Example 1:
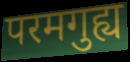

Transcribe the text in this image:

परमगुह्य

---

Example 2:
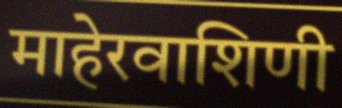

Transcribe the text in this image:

माहेरवाशिणी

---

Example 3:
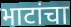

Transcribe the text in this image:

भाटांचा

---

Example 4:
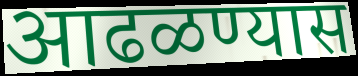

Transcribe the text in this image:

आढळण्यास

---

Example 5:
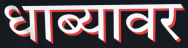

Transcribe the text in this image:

धाब्यावर